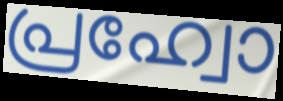
പ്രഹ്വോ